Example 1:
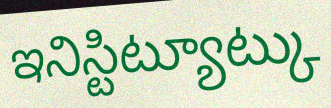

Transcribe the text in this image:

ఇనిస్టిట్యూట్కు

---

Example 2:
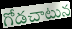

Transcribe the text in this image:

గోడచాటున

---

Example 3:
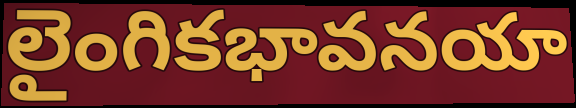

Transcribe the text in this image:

లైంగికభావనయా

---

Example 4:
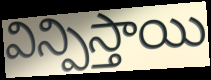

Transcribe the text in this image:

విన్పిస్తాయి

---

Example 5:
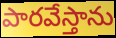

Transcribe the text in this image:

పారవేస్తాను